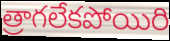
త్రాగలేకపోయిరి